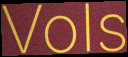
Vols